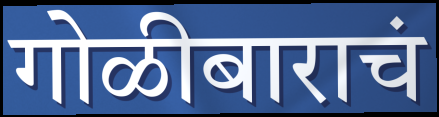
गोळीबाराचं